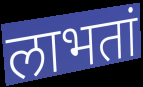
लाभतां